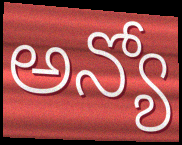
అన్యో